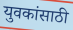
युवकांसाठी